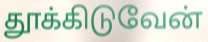
தூக்கிடுவேன்